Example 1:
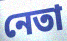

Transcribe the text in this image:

নেতা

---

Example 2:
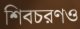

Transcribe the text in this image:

শিবচরণও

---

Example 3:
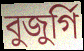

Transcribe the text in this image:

বুজুর্গি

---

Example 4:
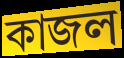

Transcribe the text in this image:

কাজল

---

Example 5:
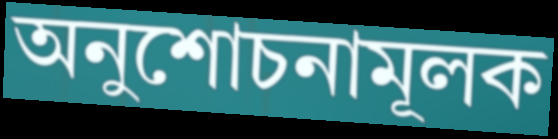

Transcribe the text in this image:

অনুশোচনামূলক